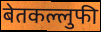
बेतकल्लुफी